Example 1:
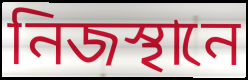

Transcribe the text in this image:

নিজস্থানে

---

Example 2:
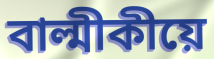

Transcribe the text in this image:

বাল্মীকীয়ে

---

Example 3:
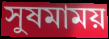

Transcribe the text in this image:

সুষমাময়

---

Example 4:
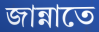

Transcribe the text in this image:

জান্নাতে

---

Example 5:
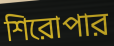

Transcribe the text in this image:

শিরোপার